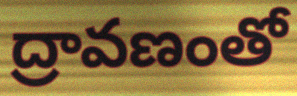
ద్రావణంతో